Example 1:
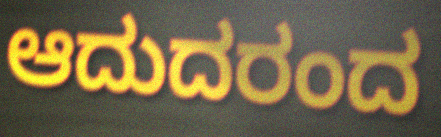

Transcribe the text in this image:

ಆದುದರಂದ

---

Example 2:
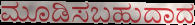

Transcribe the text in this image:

ಮೂಡಿಸಬಹುದಾದ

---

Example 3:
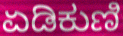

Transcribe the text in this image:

ಏಡಿಕುಣಿ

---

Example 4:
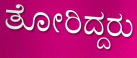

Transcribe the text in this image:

ತೋರಿದ್ದರು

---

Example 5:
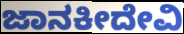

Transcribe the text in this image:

ಜಾನಕೀದೇವಿ